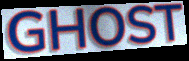
GHOST